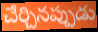
చేర్చినప్పుడు